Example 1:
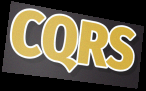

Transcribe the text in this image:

CQRS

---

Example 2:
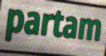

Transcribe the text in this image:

partam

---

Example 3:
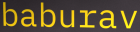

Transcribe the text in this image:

baburav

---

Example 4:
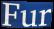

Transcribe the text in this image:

Fur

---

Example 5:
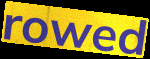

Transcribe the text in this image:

rowed